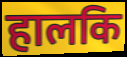
हालकि